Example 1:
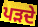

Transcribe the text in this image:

ਪੜਦੇ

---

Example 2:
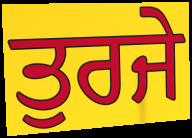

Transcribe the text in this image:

ਤੁਰਜੇ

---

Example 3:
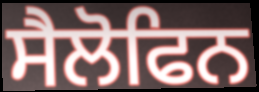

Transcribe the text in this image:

ਸੈਲੋਫਿਨ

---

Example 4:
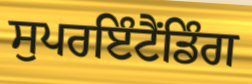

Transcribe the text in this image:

ਸੁਪਰਇੰਟੈਂਡਿੰਗ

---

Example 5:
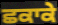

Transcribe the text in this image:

ਛਕਾਕੇ